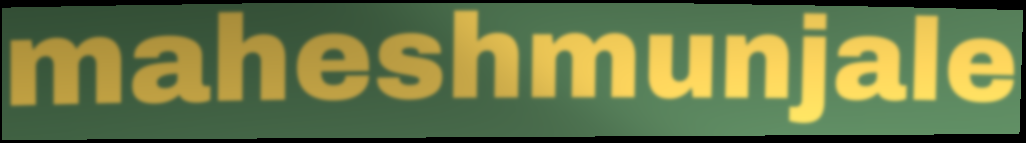
maheshmunjale